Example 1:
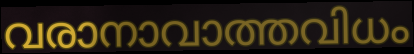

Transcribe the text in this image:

വരാനാവാത്തവിധം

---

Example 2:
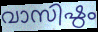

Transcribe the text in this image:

വാസിഷ്ഠം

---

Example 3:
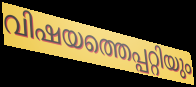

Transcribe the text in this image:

വിഷയത്തെപ്പറ്റിയും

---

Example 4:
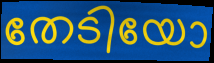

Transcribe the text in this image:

തേടിയോ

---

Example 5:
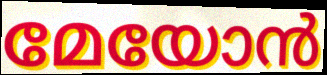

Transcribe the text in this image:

മേയോൻ